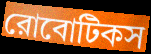
রোবোটিকস